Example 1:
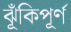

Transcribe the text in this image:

ঝূঁকিপূর্ণ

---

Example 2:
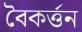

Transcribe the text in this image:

বৈকর্ত্তন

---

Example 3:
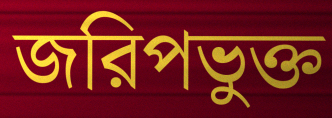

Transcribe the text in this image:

জরিপভুক্ত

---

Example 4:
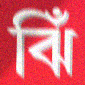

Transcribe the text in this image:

ঝিঁ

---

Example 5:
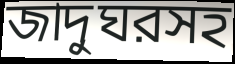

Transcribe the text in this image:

জাদুঘরসহ